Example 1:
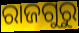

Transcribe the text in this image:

ରାଜଗୁରୁ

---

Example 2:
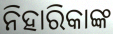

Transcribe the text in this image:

ନିହାରିକାଙ୍କ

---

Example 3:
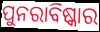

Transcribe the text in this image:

ପୁନରାବିଷ୍କାର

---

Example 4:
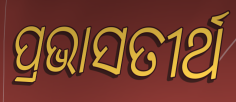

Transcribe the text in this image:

ପ୍ରଭାସତୀର୍ଥ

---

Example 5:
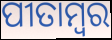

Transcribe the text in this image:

ପୀତାମ୍ବର